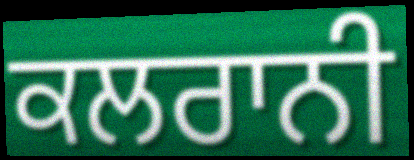
ਕਲਰਾਨੀ